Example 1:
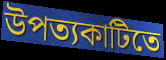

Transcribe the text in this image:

উপত্যকাটিতে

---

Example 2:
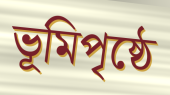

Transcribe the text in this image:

ভূমিপৃষ্ঠে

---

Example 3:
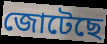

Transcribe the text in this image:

জোটেছে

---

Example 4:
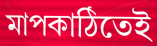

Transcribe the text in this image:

মাপকাঠিতেই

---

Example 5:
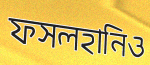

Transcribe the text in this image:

ফসলহানিও